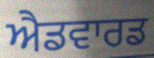
ਐਡਵਾਰਡ